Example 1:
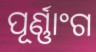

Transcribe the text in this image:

ପୂର୍ଣ୍ଣାଂଗ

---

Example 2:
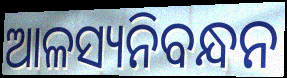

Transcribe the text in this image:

ଆଳସ୍ୟନିବନ୍ଧନ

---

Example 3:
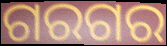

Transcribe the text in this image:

ଗରଗର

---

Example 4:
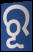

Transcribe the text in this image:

ରୂ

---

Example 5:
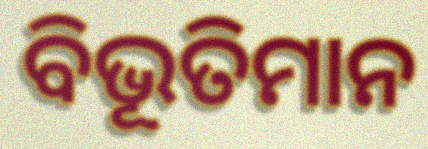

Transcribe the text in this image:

ବିଭୂତିମାନ